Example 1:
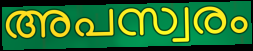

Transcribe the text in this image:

അപസ്വരം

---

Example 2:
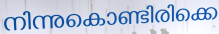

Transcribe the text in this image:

നിന്നുകൊണ്ടിരിക്കെ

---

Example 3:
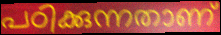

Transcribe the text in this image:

പഠിക്കുന്നതാണ്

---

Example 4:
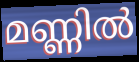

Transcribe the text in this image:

മണ്ണിൽ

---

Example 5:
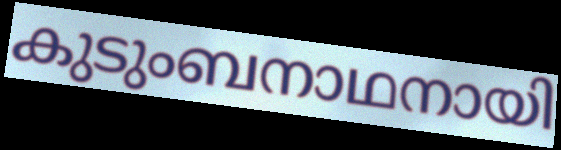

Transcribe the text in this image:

കുടുംബനാഥനായി